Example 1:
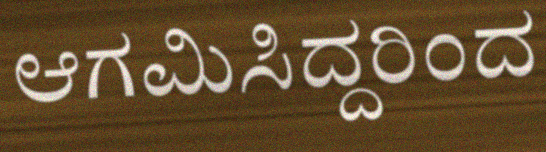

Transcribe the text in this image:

ಆಗಮಿಸಿದ್ದರಿಂದ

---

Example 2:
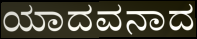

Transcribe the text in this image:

ಯಾದವನಾದ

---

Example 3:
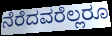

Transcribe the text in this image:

ನೆರೆದವರೆಲ್ಲರೂ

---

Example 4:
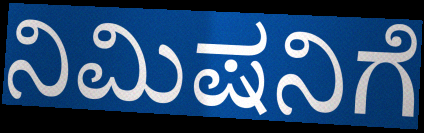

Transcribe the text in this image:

ನಿಮಿಷನಿಗೆ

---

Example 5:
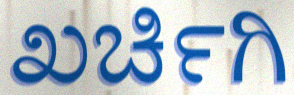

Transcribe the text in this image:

ಖರ್ಚಿಗಿ